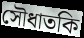
সৌধাতকি